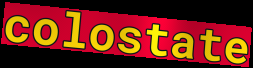
colostate